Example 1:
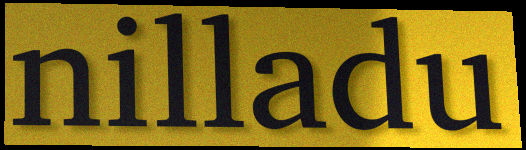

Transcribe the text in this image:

nilladu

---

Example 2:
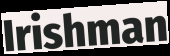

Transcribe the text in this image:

Irishman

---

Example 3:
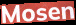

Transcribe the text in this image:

Mosen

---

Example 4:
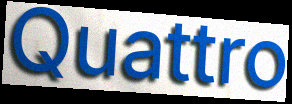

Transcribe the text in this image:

Quattro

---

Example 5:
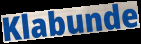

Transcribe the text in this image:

Klabunde